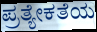
ಪ್ರತ್ಯೇಕತೆಯ